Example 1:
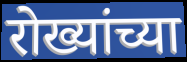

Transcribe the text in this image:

रोख्यांच्या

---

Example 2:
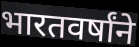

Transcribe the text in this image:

भारतवर्षांने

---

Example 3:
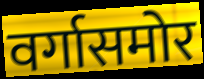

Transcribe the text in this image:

वर्गासमोर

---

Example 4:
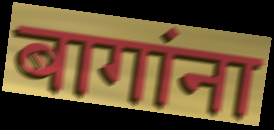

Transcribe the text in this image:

बागांना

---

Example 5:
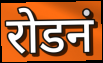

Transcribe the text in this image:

रोडनं